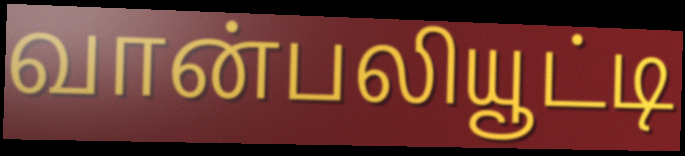
வான்பலியூட்டி